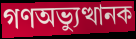
গণঅভ্যুত্থানক